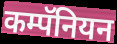
कम्पॅनियन